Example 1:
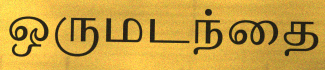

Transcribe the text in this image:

ஒருமடந்தை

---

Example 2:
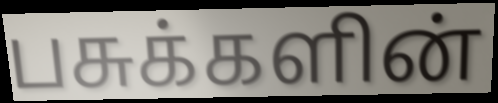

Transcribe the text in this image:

பசுக்களின்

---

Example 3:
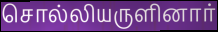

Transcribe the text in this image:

சொல்லியருளினார்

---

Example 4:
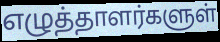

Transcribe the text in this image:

எழுத்தாளர்களுள்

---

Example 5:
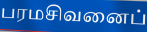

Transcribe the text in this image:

பரமசிவனைப்